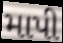
માપી